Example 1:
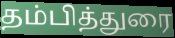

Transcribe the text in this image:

தம்பித்துரை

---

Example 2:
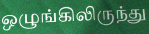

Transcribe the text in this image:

ஒழுங்கிலிருந்து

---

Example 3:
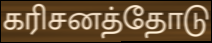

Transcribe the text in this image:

கரிசனத்தோடு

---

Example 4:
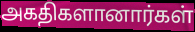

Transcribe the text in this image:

அகதிகளானார்கள்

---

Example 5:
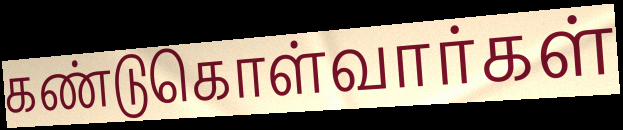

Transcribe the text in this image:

கண்டுகொள்வார்கள்